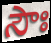
సౌః